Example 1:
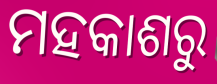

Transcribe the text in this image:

ମହକାଶରୁ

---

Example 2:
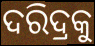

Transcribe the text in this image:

ଦରିଦ୍ରକୁ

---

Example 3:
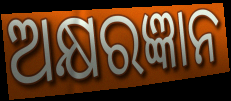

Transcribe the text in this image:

ଅକ୍ଷରଜ୍ଞାନ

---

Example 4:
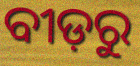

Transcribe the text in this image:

ବୀଡ଼ରୁ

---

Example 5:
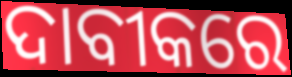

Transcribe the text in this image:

ଦାବୀକରେ